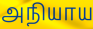
அநியாய